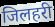
जिलहरी